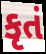
કૃતં